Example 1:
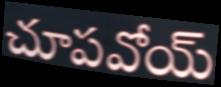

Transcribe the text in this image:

చూపవోయ్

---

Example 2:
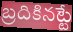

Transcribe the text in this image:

బ్రదికినట్టే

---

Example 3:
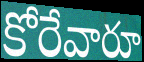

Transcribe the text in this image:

కోరేవారూ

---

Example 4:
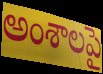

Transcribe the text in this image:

అంశాలపై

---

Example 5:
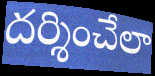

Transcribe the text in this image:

దర్శించేలా